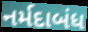
નર્મદાબંધ